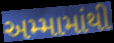
અમ્મામાંથી